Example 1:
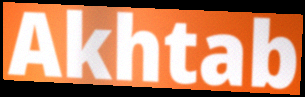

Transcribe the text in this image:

Akhtab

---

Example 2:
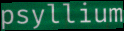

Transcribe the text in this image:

psyllium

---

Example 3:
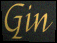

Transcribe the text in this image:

Gin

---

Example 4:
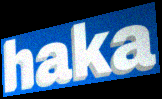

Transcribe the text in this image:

haka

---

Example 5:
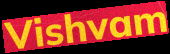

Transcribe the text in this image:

Vishvam